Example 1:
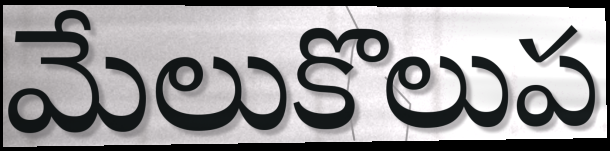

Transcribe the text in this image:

మేలుకొలుప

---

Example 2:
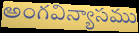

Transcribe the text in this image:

అంగవిన్యాసము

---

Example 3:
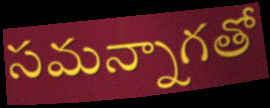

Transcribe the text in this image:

సమన్నాగతో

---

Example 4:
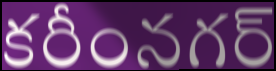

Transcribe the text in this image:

కరీంనగర్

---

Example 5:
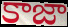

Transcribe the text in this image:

కాజా